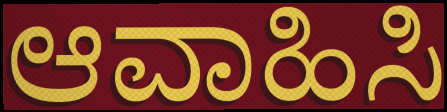
ಆವಾಹಿಸಿ